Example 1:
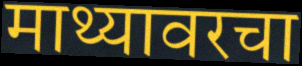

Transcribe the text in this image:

माथ्यावरचा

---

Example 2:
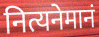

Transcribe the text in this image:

नित्यनेमानं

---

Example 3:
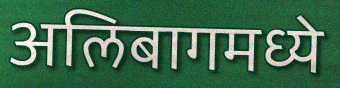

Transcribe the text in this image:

अलिबागमध्ये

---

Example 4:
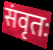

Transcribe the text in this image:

संवृतः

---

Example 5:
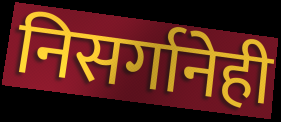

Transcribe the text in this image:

निसर्गानेही